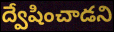
ద్వేషించాడని